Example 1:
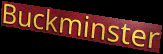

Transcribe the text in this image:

Buckminster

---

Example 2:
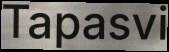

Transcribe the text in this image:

Tapasvi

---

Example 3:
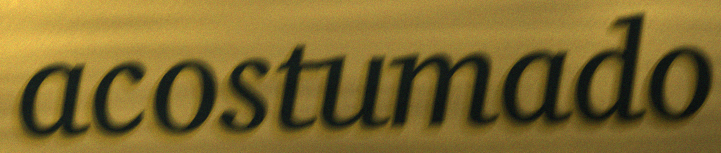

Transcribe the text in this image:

acostumado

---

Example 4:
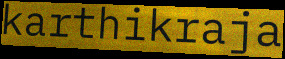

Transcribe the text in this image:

karthikraja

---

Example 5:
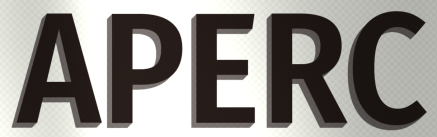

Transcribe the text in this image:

APERC